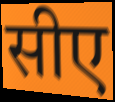
सीए